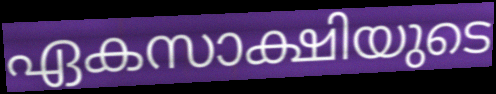
ഏകസാക്ഷിയുടെ